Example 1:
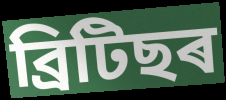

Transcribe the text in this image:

ব্ৰিটিছৰ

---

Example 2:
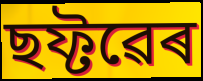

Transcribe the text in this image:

ছফ্টৱেৰ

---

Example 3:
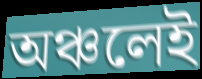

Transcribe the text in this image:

অঞ্চলেই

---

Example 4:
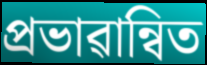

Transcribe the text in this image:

প্ৰভাৱান্বিত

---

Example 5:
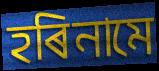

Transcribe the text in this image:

হৰিনামে